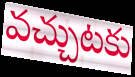
వచ్చుటకు